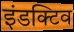
इंडक्टिव